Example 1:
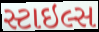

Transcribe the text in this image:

સ્ટાઇલ્સ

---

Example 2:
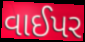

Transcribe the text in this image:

વાઈપર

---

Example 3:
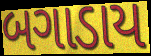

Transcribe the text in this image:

બગાડાય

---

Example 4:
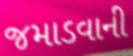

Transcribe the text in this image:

જમાડવાની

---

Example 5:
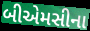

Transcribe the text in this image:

બીએમસીના